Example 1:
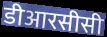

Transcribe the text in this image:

डीआरसीसी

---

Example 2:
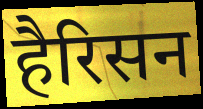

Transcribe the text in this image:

हैरिसन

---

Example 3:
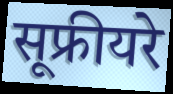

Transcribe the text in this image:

सूफ्रीयरे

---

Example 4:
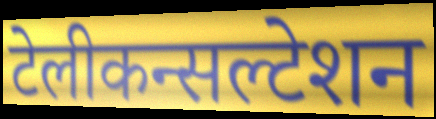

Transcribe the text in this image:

टेलीकन्सल्टेशन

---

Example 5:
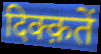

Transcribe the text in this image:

दिक्क़तें